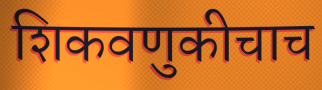
शिकवणुकीचाच